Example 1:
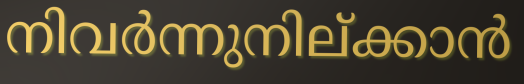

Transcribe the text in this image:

നിവർന്നുനില്ക്കാൻ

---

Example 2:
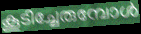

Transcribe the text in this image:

കൂടിച്ചേരുമ്പോൾ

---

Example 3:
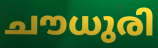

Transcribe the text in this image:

ചൗധുരി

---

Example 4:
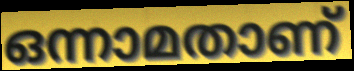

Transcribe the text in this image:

ഒന്നാമതാണ്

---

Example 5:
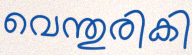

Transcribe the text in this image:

വെന്തുരികി